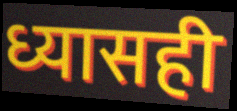
ध्यासही